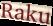
Raku